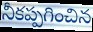
నీకప్పగించిన